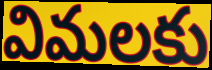
విమలకు